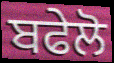
ਬਫੇਲੋ